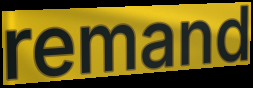
remand